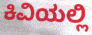
ಕಿವಿಯಲ್ಲಿ